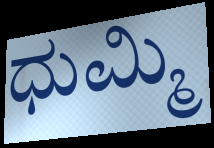
ಧುಮ್ಮಿ